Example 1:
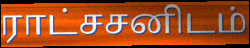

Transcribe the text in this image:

ராட்சசனிடம்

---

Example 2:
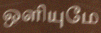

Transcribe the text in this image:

ஒளியுமே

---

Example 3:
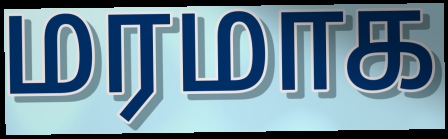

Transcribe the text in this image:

மரமாக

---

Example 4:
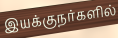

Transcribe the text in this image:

இயக்குநர்களில்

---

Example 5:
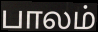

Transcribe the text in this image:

பாலம்